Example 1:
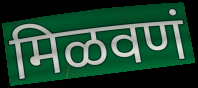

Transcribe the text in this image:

मिळवणं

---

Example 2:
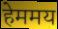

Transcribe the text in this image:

हेममय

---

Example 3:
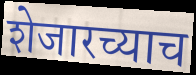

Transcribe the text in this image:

शेजारच्याच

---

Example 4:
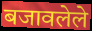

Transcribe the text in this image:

बजावलेले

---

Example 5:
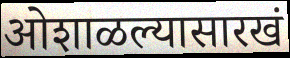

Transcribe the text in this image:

ओशाळल्यासारखं